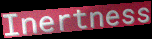
Inertness